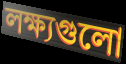
লক্ষ্যগুলো